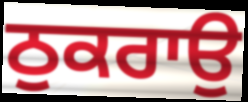
ਠੁਕਰਾਉ